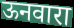
ऊनवारा